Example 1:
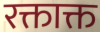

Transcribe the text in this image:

रक्ताक्त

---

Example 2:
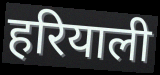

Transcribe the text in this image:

हरियाली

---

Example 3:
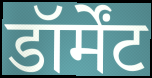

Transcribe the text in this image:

डॉर्मेंट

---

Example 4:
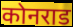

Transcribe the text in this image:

कोनराड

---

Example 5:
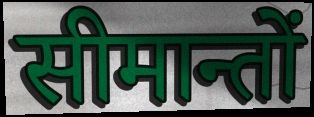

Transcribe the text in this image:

सीमान्तों